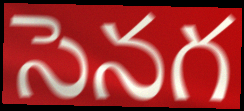
సెనగ